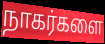
நாகர்களை